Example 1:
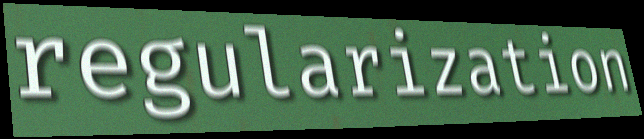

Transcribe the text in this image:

regularization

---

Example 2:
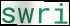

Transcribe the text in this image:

swri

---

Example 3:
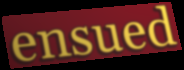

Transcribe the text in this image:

ensued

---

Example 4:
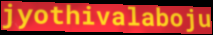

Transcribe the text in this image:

jyothivalaboju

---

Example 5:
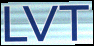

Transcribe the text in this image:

LVT